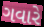
ગવારે